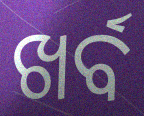
ଖର୍ବ